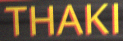
THAKI